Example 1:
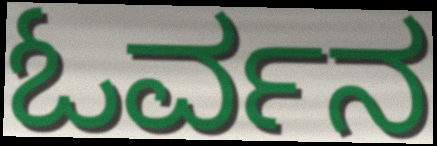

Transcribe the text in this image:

ಓರ್ವನ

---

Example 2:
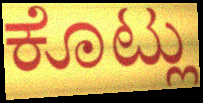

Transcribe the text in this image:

ಕೊಟ್ಲು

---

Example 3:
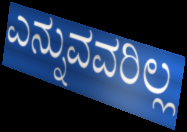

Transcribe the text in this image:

ಎನ್ನುವವರಿಲ್ಲ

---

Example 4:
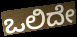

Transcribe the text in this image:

ಒಲಿದೇ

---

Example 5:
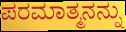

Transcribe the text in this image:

ಪರಮಾತ್ಮನನ್ನು